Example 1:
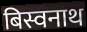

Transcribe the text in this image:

बिस्वनाथ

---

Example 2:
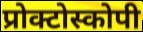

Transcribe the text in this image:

प्रोक्टोस्कोपी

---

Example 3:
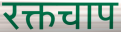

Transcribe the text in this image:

रक्तचाप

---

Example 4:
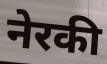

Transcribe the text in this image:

नेरकी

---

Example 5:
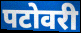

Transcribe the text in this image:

पटोवरी